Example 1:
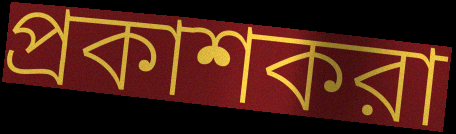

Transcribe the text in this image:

প্রকাশকরা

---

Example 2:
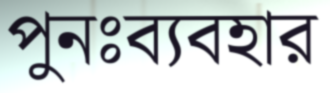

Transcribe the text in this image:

পুনঃব্যবহার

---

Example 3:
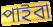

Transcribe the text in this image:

পাইবা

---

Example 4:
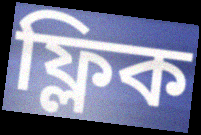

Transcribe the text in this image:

ফ্লিক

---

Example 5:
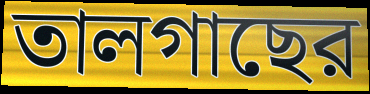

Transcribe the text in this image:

তালগাছের